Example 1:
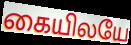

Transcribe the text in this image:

கையிலயே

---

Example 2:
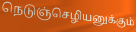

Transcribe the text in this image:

நெடுஞ்செழியனுக்கும்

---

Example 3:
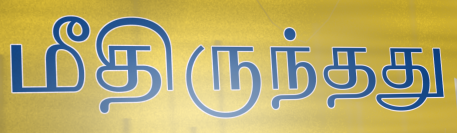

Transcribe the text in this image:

மீதிருந்தது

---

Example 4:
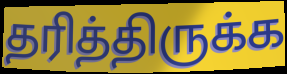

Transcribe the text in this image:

தரித்திருக்க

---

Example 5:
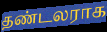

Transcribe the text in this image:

தண்டலராக